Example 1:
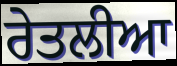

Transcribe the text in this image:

ਰੇਤਲੀਆ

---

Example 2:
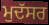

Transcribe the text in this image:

ਮੁਦੱਸਰ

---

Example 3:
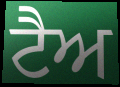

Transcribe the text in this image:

ਟੈਅ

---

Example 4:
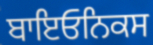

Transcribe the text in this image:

ਬਾਇਓਨਿਕਸ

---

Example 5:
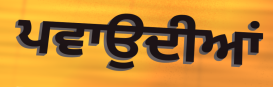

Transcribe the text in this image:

ਪਵਾਉਦੀਆਂ